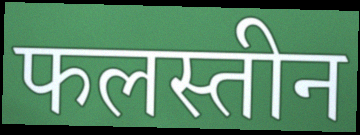
फलस्तीन